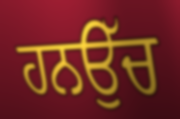
ਹਨਉੱਚ